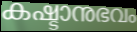
കഷ്ടാനുഭവം